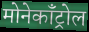
मोनेकॉंट्रोल